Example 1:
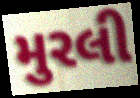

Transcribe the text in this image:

મુરલી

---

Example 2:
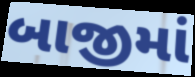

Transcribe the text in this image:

બાજીમાં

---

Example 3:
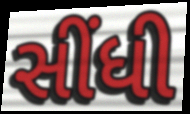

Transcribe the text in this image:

સીંધી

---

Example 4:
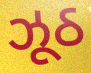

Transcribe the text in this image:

ઝૂઠ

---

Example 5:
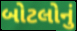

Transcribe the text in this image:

બોટલોનું